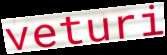
veturi